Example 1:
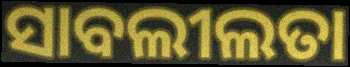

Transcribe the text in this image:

ସାବଲୀଲତା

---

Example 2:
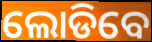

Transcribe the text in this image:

ଲୋଡିବେ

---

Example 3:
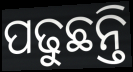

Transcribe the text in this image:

ପଢୁଛନ୍ତି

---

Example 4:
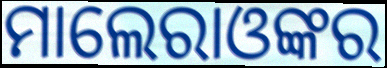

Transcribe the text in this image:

ମାଲେରାଓଙ୍କର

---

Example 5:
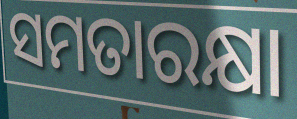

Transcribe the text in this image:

ସମତାରକ୍ଷା